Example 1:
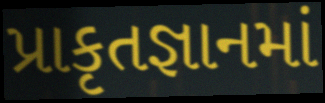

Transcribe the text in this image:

પ્રાકૃતજ્ઞાનમાં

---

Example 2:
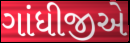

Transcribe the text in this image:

ગાંધીજીએ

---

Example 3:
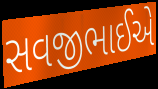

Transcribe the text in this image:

સવજીભાઈએ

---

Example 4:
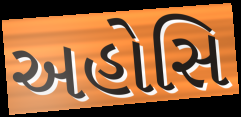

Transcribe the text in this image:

અહોસિ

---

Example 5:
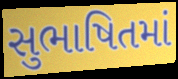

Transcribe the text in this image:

સુભાષિતમાં